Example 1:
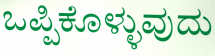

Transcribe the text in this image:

ಒಪ್ಪಿಕೊಳ್ಳುವುದು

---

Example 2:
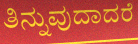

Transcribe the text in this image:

ತಿನ್ನುವುದಾದರೆ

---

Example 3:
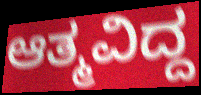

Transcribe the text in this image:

ಆತ್ಮವಿದ್ದ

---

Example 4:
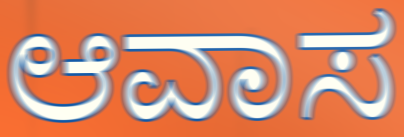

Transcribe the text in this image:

ಆವಾಸ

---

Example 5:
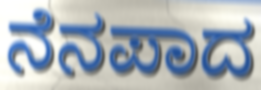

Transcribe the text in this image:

ನೆನಪಾದ